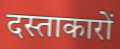
दस्ताकारों